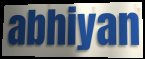
abhiyan